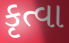
કૃત્વા